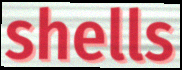
shells